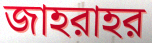
জাহরাহর